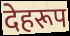
देहरूप